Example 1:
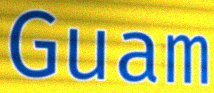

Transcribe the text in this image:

Guam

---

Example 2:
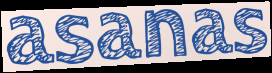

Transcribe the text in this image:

asanas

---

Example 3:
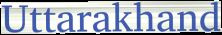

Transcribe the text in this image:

Uttarakhand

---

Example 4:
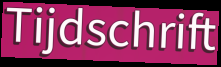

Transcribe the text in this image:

Tijdschrift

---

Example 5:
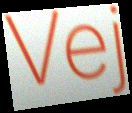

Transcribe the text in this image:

Vej